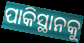
ପାକିସ୍ଥାନକୁ